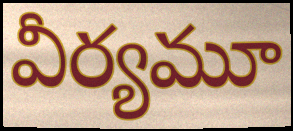
వీర్యమూ